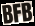
BFB